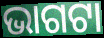
ଭାଗଟା